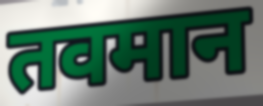
तवमान